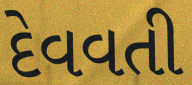
દેવવતી